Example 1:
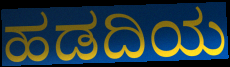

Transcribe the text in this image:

ಹಡದಿಯ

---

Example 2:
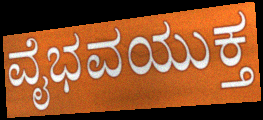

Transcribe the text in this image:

ವೈಭವಯುಕ್ತ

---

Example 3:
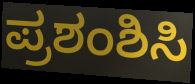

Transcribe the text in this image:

ಪ್ರಶಂಶಿಸಿ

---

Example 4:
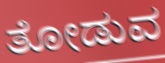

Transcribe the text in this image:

ತೋಡುವ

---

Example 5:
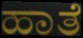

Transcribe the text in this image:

ಹಾತೆ